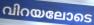
വിറയലോടെ